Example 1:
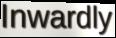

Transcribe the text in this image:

Inwardly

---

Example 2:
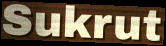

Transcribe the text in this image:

Sukrut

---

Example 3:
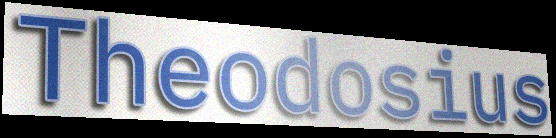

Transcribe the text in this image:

Theodosius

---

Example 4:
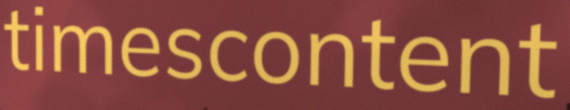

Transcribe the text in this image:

timescontent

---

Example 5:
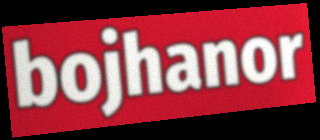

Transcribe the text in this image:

bojhanor